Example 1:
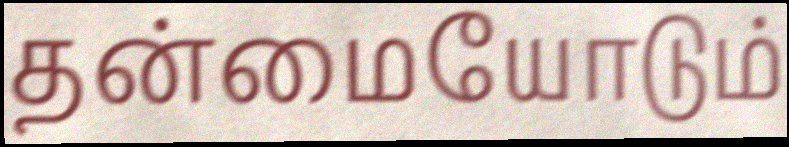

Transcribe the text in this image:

தன்மையோடும்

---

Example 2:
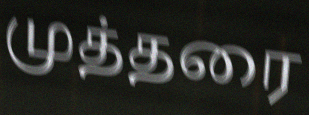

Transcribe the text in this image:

முத்தரை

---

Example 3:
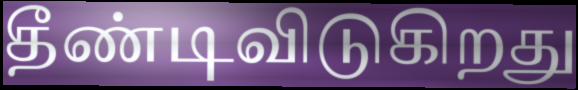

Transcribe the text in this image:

தீண்டிவிடுகிறது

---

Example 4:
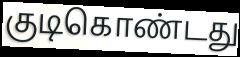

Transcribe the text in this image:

குடிகொண்டது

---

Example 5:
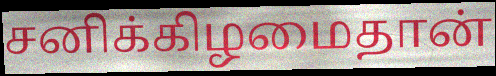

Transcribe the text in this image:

சனிக்கிழமைதான்